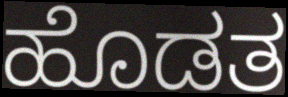
ಹೊಡತ